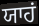
ਯਾਹਂ